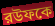
রউফকে